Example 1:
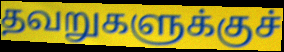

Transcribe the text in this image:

தவறுகளுக்குச்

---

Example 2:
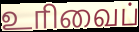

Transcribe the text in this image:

உரிவைப்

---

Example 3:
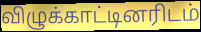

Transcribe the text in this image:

விழுக்காட்டினரிடம்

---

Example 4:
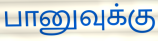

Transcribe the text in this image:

பானுவுக்கு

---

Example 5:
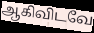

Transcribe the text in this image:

ஆகிவிடவே